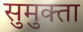
सुमुक्ता